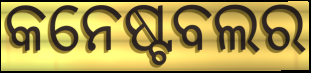
କନେଷ୍ଟବଲର